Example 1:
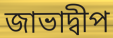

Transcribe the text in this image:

জাভাদ্বীপ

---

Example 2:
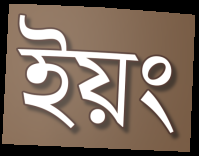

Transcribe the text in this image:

ইয়ং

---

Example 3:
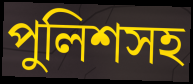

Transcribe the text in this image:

পুলিশসহ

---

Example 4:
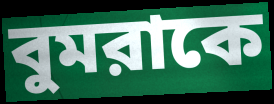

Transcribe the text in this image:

বুমরাকে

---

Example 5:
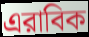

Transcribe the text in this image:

এরাবিক